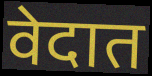
वेदात